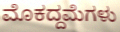
ಮೊಕದ್ದಮೆಗಳು